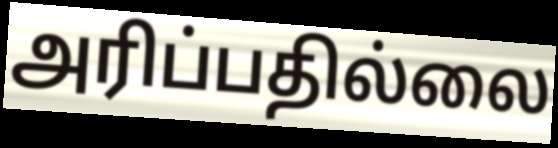
அரிப்பதில்லை